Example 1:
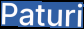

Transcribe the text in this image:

Paturi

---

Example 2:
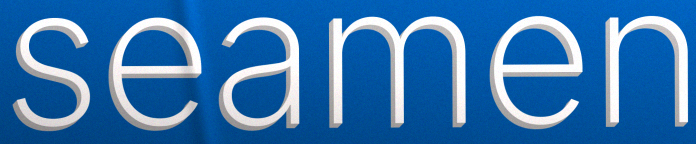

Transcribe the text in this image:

seamen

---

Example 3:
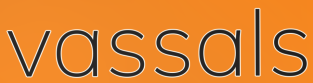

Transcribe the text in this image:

vassals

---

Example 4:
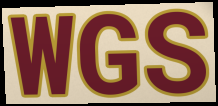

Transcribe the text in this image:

WGS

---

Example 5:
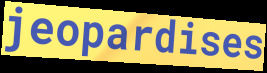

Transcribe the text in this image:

jeopardises